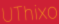
UThixo